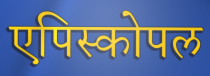
एपिस्कोपल